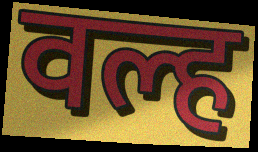
वल्ह